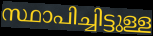
സ്ഥാപിച്ചിട്ടുള്ള